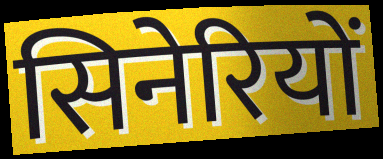
सिनेरियों